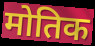
मोतिक